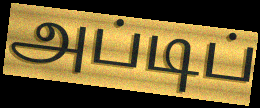
அப்டிப்